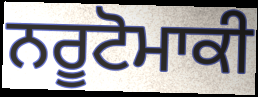
ਨਰੂਟੋਮਾਕੀ